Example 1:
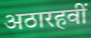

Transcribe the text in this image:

अठारहवीं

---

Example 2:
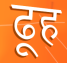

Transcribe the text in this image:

ढूह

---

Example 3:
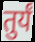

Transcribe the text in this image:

तुर्यं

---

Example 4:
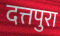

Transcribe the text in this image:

दत्तपुरा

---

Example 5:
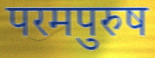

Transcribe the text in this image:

परमपुरुष